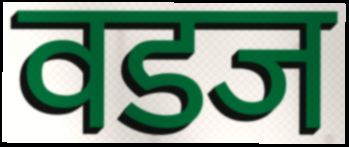
वडज